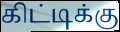
கிட்டிக்கு